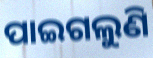
ପାଇଗଲୁଣି